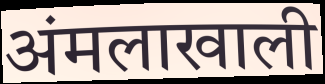
अंमलाखाली